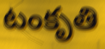
టంకృతి